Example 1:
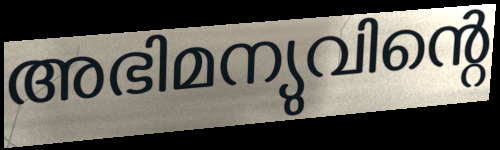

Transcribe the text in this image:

അഭിമന്യുവിന്റെ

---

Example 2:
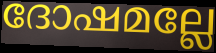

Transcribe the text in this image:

ദോഷമല്ലേ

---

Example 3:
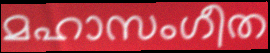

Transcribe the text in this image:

മഹാസംഗീത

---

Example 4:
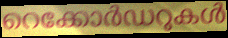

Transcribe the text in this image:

റെക്കോർഡറുകൾ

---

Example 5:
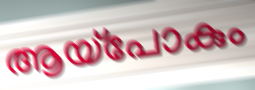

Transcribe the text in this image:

ആയ്പോകും